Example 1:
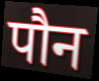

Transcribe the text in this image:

पौन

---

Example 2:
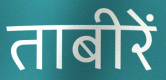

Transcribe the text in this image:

ताबीरें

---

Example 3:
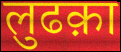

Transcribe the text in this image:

लुढक़ा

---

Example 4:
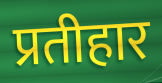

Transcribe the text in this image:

प्रतीहार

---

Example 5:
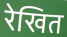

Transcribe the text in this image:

रेखित